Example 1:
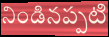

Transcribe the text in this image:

నిండినప్పటి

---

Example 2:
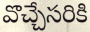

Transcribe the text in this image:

వొచ్చేసరికి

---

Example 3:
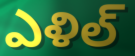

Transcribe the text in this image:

ఎళిల్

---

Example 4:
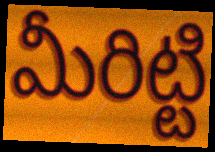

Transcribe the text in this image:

మీరిట్టి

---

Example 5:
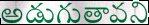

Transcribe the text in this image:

అడుగుతావని